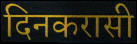
दिनकरासी